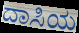
ದಾಸಿಯ